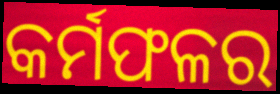
କର୍ମଫଳର